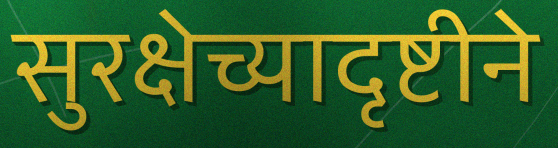
सुरक्षेच्यादृष्टीने